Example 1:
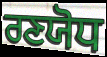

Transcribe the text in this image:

ਰਣਯੋਧ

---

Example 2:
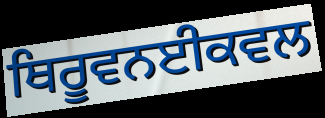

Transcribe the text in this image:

ਥਿਰੂਵਨਈਕਵਲ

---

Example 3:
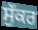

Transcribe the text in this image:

ਸੁੱਕਰ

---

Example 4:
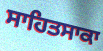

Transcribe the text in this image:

ਸਾਹਿਤਸਾਕਾ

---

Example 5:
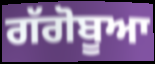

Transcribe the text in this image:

ਗੱਗੋਬੂਆ